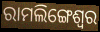
ରାମଲିଙ୍ଗେଶ୍ୱର